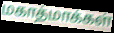
மகாத்மாக்கள்